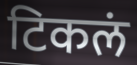
टिकलं